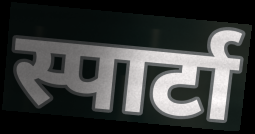
स्पार्टा